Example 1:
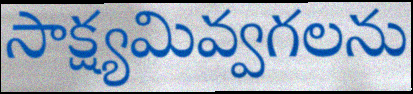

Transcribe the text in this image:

సాక్ష్యమివ్వగలను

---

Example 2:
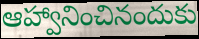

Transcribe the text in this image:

ఆహ్వానించినందుకు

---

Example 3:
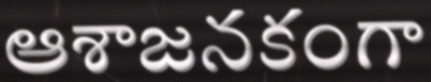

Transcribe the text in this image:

ఆశాజనకంగా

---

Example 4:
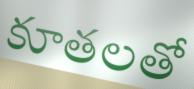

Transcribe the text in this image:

కూతలతో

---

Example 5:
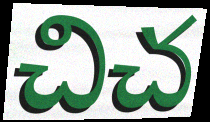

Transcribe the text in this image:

చిచ